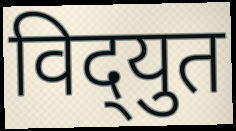
विद्‌युत